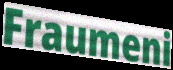
Fraumeni